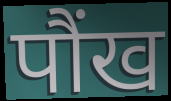
पौंख